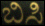
ಬಿಸಿ